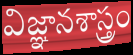
విజ్ఞానశాస్త్రం